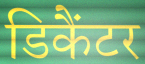
डिकैंटर